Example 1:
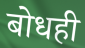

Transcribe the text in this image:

बोधही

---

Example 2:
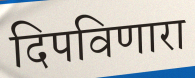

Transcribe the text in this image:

दिपविणारा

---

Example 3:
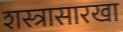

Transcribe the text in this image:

शस्त्रासारखा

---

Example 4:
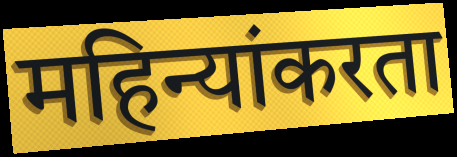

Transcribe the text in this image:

महिन्यांकरता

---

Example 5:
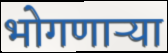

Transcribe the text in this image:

भोगणाऱ्या